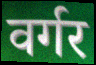
वर्गर